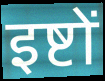
इष्टों